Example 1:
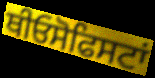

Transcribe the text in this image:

ਥੀਓਸੋਫਿਸਟਾਂ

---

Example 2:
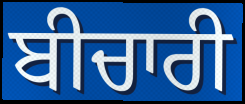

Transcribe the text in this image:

ਬੀਚਾਰੀ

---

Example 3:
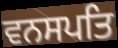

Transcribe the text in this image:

ਵਨਸਪਤਿ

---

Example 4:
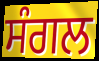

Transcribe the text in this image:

ਸੰਗਲ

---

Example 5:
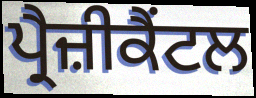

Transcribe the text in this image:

ਪ੍ਰੈਜ਼ੀਕੈਂਟਲ